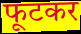
फूटकर